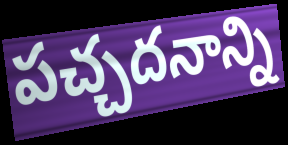
పచ్చదనాన్ని